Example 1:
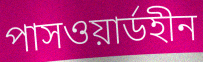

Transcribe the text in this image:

পাসওয়ার্ডহীন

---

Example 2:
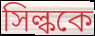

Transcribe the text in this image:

সিল্ককে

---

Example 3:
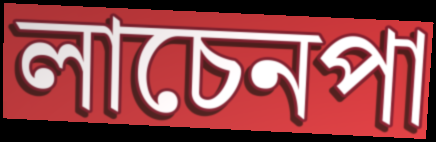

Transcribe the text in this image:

লাচেনপা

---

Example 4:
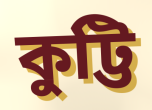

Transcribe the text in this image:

কুট্টি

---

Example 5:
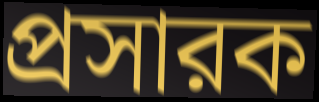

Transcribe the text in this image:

প্রসারক